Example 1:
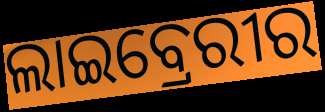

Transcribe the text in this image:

ଲାଇବ୍ରେରୀର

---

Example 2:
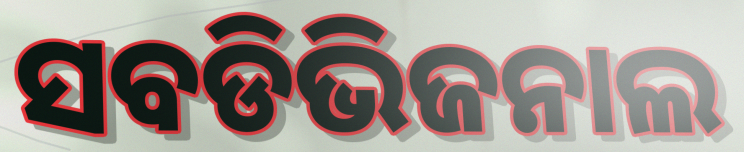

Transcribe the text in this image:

ସବଡିଭିଜନାଲ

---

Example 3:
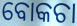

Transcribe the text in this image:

ବୋକଚା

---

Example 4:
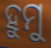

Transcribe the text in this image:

ହୁମୁ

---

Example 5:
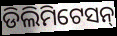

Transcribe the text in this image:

ଡିଲିମିଟେସନ୍